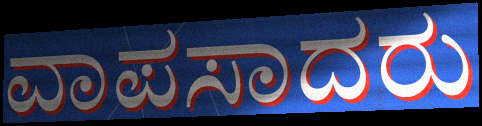
ವಾಪಸಾದರು